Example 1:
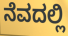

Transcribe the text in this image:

ನೆವದಲ್ಲಿ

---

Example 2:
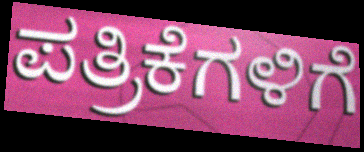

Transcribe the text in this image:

ಪತ್ರಿಕೆಗಳಿಗೆ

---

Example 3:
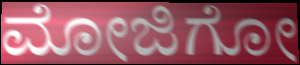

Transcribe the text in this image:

ಮೋಜಿಗೋ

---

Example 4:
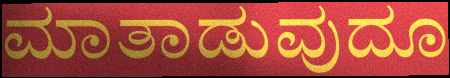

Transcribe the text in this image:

ಮಾತಾಡುವುದೂ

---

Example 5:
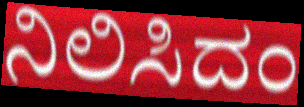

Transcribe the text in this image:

ನಿಲಿಸಿದಂ